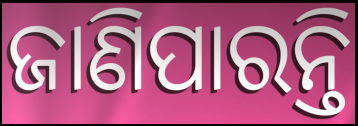
ଜାଣିପାରନ୍ତି